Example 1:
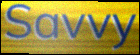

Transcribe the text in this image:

Savvy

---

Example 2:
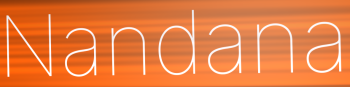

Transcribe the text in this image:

Nandana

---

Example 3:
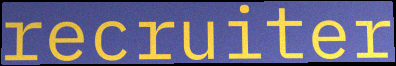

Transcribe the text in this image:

recruiter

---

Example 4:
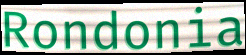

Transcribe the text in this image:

Rondonia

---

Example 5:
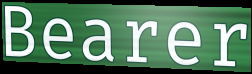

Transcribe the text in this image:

Bearer